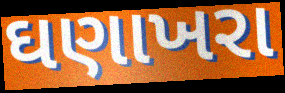
ઘણાખરા